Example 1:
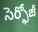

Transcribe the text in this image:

సెర్ఫోజీ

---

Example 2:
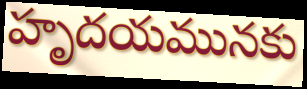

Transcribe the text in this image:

హృదయమునకు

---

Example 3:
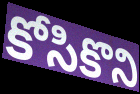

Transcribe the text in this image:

కోసికొని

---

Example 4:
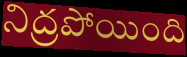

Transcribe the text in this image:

నిద్రపోయింది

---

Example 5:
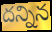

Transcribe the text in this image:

దన్నిన